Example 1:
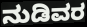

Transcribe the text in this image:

ನುಡಿವರ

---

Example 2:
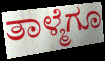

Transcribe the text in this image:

ತಾಳ್ಮೆಗೂ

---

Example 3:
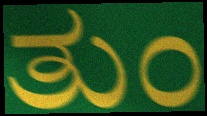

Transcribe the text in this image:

ತುಂ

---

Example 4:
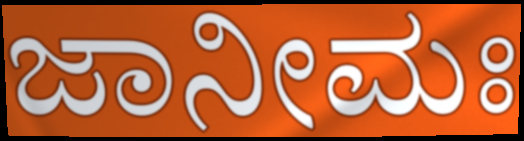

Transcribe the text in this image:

ಜಾನೀಮಃ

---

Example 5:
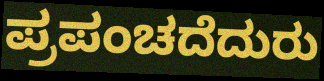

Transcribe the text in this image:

ಪ್ರಪಂಚದೆದುರು